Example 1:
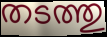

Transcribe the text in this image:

തടത്തു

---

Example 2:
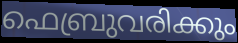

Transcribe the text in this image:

ഫെബ്രുവരിക്കും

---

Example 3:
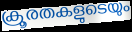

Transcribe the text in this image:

ക്രൂരതകളുടെയും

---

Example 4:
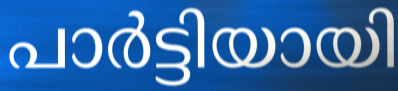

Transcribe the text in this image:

പാർട്ടിയായി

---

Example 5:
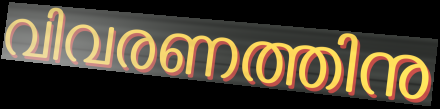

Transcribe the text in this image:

വിവരണത്തിനു